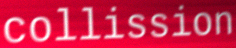
collission